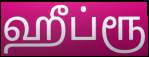
ஹீப்ரூ